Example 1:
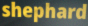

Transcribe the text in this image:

shephard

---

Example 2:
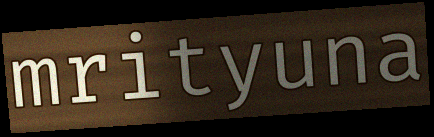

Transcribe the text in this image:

mrityuna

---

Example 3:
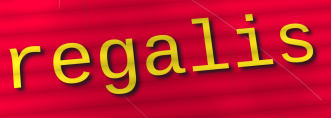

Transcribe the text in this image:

regalis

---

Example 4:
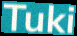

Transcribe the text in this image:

Tuki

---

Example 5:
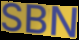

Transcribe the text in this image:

SBN